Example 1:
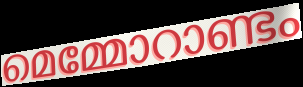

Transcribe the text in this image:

മെമ്മോറാണ്ടം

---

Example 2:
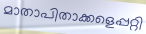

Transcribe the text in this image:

മാതാപിതാക്കളെപ്പറ്റി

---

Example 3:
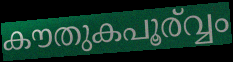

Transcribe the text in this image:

കൗതുകപൂര്വ്വം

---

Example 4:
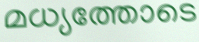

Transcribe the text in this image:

മധ്യത്തോടെ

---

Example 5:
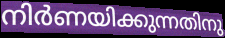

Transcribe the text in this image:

നിർണയിക്കുന്നതിനു